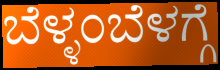
ಬೆಳ್ಳಂಬೆಳಗ್ಗೆ